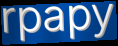
rpapy